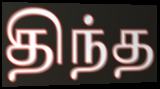
திந்த